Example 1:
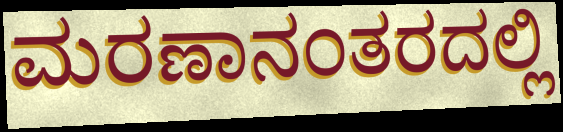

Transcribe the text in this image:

ಮರಣಾನಂತರದಲ್ಲಿ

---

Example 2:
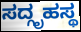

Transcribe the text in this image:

ಸದ್ಗೃಹಸ್ಥ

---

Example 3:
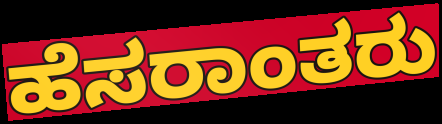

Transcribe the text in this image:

ಹೆಸರಾಂತರು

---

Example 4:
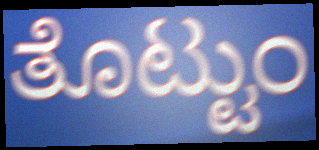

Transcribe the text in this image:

ತೊಟ್ಟುಂ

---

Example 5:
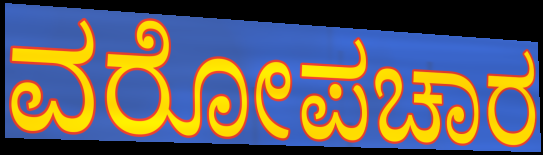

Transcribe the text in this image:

ವರೋಪಚಾರ